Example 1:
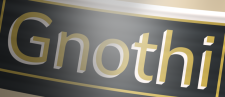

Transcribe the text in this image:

Gnothi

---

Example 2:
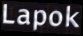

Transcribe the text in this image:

Lapok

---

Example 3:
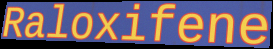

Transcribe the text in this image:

Raloxifene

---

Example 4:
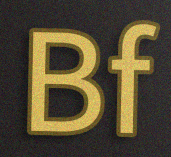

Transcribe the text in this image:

Bf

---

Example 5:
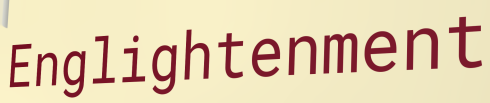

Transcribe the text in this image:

Englightenment